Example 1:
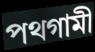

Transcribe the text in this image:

পথগামী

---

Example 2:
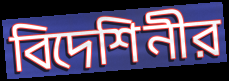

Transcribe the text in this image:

বিদেশিনীর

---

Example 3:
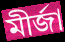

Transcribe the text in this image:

মীর্জা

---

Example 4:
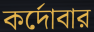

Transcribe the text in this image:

কর্দোবার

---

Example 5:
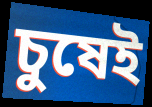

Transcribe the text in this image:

চুষেই